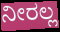
ನೀರಲ್ಲ